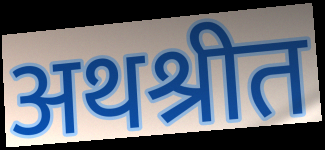
अथश्रीत